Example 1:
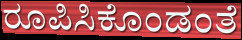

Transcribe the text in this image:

ರೂಪಿಸಿಕೊಂಡಂತೆ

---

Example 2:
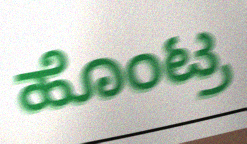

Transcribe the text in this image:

ಹೊಂಟ್ರ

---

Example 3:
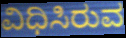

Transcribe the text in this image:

ವಿಧಿಸಿರುವ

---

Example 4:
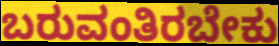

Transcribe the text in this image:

ಬರುವಂತಿರಬೇಕು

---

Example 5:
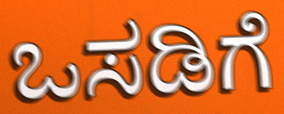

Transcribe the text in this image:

ಒಸಡಿಗೆ